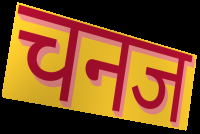
चनज